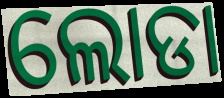
ଲୋଡା